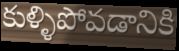
కుళ్ళిపోవడానికి